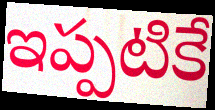
ఇప్పటికే